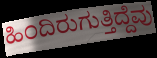
ಹಿಂದಿರುಗುತ್ತಿದ್ದೆವು